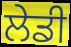
ਲੇਡੀ